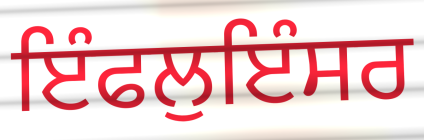
ਇੰਫਲੁਇੰਸਰ